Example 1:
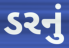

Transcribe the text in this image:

ડરનું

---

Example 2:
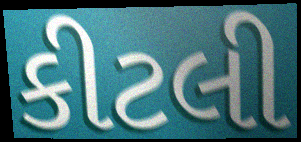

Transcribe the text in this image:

કીટલી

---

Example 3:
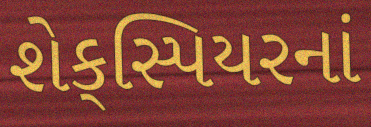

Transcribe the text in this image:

શેક્‌સ્પિયરનાં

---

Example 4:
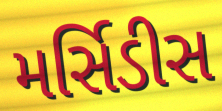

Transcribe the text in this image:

મર્સિડીસ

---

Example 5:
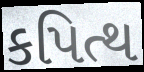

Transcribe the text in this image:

કપિત્થ